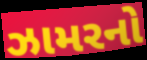
ઝામરનો